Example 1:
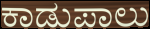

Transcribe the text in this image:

ಕಾಡುಪಾಲು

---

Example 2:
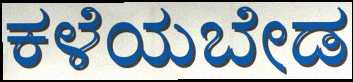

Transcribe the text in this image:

ಕಳೆಯಬೇಡ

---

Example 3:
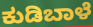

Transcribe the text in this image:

ಕುಡಿಬಾಳೆ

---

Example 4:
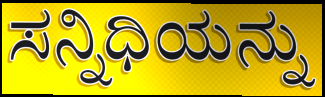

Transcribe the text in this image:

ಸನ್ನಿಧಿಯನ್ನು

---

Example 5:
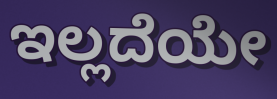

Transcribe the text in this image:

ಇಲ್ಲದೆಯೇ